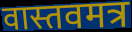
वास्तवमत्र